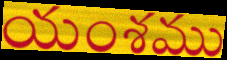
యంశము